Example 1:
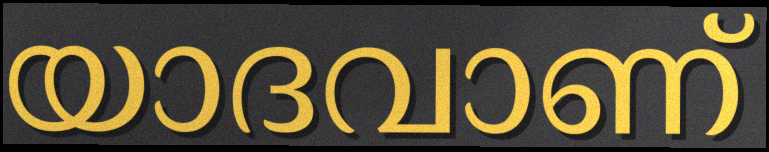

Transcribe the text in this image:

യാദവാണ്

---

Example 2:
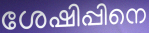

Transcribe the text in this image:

ശേഷിപ്പിനെ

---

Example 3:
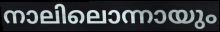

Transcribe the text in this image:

നാലിലൊന്നായും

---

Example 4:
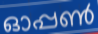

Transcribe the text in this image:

ഓപ്പൺ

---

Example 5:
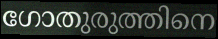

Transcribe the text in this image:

ഗോതുരുത്തിനെ